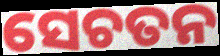
ସେଚତନ